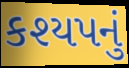
કશ્યપનું